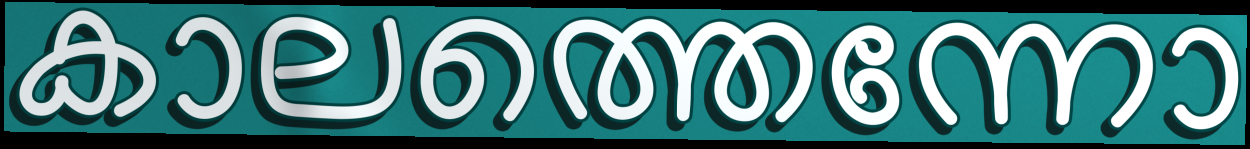
കാലത്തെന്നോ